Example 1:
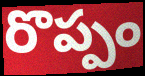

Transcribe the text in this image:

రొప్పం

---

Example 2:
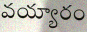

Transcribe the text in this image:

వయ్యారం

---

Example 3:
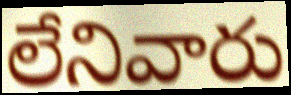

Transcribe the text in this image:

లేనివారు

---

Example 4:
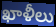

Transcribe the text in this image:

ఖాళీలు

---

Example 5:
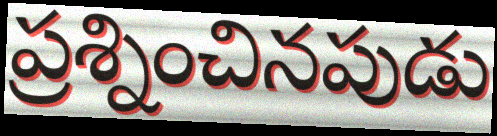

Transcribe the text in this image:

ప్రశ్నించినపుడు